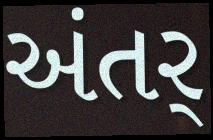
અંતર્